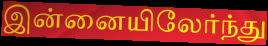
இன்னையிலேர்ந்து